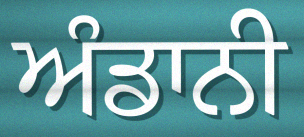
ਅੰਡਾਨੀ